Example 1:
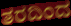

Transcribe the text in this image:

ತರದಿಂದ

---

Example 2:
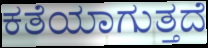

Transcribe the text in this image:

ಕತೆಯಾಗುತ್ತದೆ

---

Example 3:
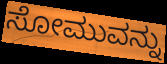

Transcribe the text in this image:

ಸೋಮುವನ್ನು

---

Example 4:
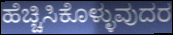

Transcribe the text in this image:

ಹೆಚ್ಚಿಸಿಕೊಳ್ಳುವುದರ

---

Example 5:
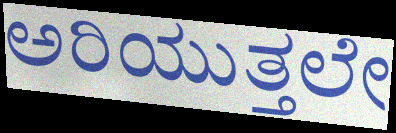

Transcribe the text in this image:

ಅರಿಯುತ್ತಲೇ